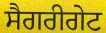
ਸੈਗਰੀਗੇਟ